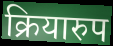
क्रियारुप